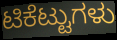
ಟಿಕೆಟ್ಟುಗಳು